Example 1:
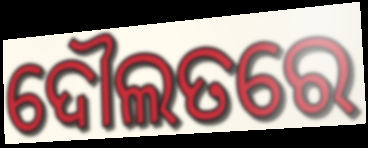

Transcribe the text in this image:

ଦୌଲତରେ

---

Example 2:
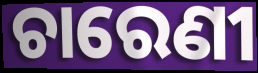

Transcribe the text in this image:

ଚାରେଣୀ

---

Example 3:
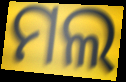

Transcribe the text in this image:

ମଲ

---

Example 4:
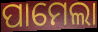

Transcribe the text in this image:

ପାମେଲା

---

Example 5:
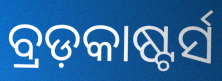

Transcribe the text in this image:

ବ୍ରଡ଼କାଷ୍ଟର୍ସ